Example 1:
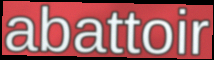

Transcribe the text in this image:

abattoir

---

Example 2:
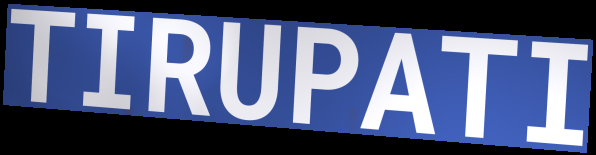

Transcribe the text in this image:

TIRUPATI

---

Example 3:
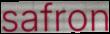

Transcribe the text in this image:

safron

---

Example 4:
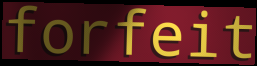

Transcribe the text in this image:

forfeit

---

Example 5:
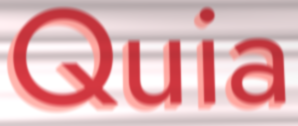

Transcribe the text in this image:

Quia